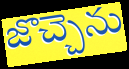
జొచ్చెను